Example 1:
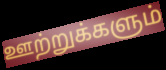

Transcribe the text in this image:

ஊற்றுக்களும்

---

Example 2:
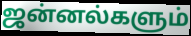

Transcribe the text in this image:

ஜன்னல்களும்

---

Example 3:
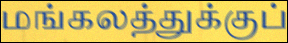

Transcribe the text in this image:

மங்கலத்துக்குப்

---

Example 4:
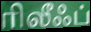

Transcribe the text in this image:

ரிலீஃப்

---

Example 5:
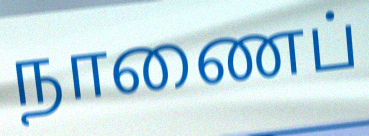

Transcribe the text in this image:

நாணைப்